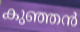
കുഞ്ഞൻ